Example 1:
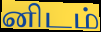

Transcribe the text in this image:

னிடம்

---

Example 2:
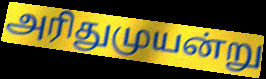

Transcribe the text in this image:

அரிதுமுயன்று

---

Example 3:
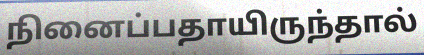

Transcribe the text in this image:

நினைப்பதாயிருந்தால்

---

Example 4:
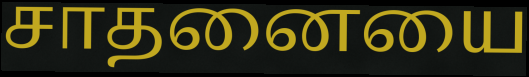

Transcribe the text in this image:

சாதனையை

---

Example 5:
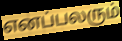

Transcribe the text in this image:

எனப்பலரும்